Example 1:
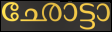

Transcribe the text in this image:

ഛോട്ടാ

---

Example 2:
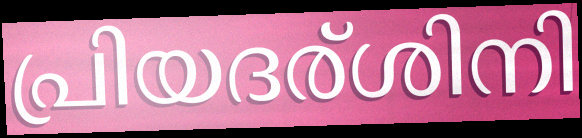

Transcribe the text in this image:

പ്രിയദര്ശിനി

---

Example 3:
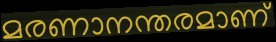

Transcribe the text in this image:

മരണാനന്തരമാണ്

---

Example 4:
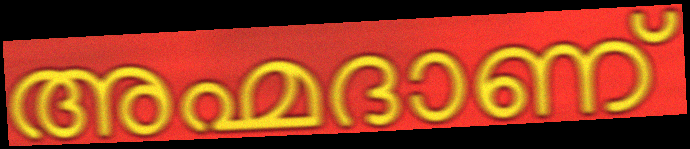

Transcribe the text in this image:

അഹ്മദാണ്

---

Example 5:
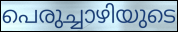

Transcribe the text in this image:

പെരുച്ചാഴിയുടെ